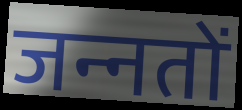
जन्नतों